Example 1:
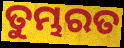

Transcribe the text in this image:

ତୁମ୍ଭରତ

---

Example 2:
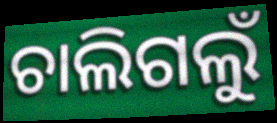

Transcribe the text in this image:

ଚାଲିଗଲୁଁ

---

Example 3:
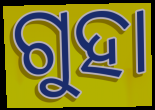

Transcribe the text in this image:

ଗୁହା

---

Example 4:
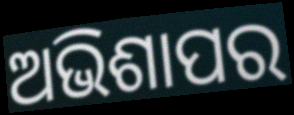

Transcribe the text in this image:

ଅଭିଶାପର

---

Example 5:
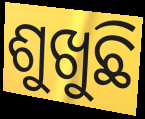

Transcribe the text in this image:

ଶୁଖୁଛି